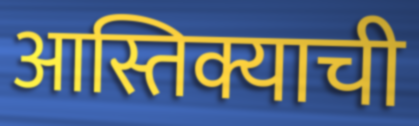
आस्तिक्याची